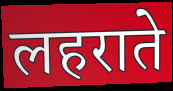
लहराते